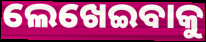
ଲେଖେଇବାକୁ